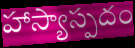
హాస్యాస్పదం